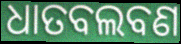
ଧାତବଲବଣ